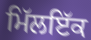
ਮਿੱਲਇੱਕ